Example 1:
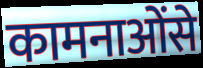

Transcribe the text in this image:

कामनाओंसे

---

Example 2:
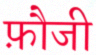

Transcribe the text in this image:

फ़ौजी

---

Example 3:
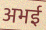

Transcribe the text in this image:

अभई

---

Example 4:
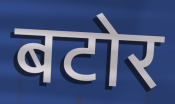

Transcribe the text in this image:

बटोर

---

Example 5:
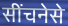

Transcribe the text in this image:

सींचनेसे